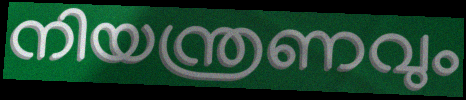
നിയന്ത്രണവും